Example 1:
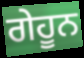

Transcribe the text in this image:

ਗੇਹੂਨ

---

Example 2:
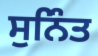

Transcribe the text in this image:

ਸੁਨਿੰਤ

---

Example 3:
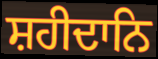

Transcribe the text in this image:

ਸ਼ਹੀਦਾਨਿ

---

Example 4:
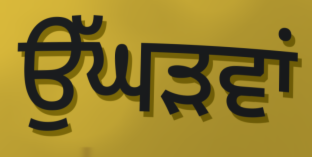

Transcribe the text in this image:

ਉੱਘੜਵਾਂ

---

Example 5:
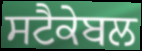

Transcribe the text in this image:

ਸਟੈਕੇਬਲ